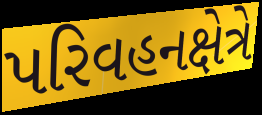
પરિવહનક્ષેત્રે